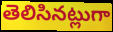
తెలిసినట్లుగా